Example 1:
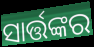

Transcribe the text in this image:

ସାର୍ତ୍ତଙ୍କର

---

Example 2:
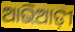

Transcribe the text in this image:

ଆଭିଆଡ଼ୀ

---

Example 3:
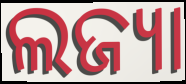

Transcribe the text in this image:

ଲଜ୍ୟା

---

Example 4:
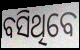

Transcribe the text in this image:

ବସିଥିବେ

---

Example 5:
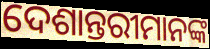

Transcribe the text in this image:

ଦେଶାନ୍ତରୀମାନଙ୍କ